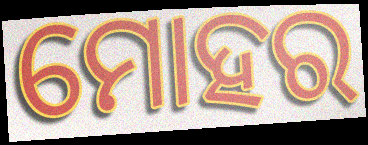
ମୋହର